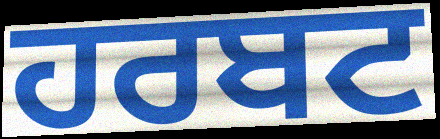
ਹਰਬਟ